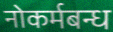
नोकर्मबन्ध